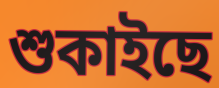
শুকাইছে